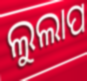
ଲୁଲାପ